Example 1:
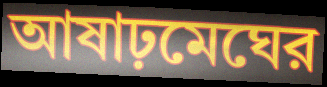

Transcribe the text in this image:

আষাঢ়মেঘের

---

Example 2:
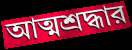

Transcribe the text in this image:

আত্মশ্রদ্ধার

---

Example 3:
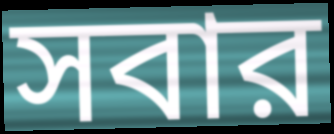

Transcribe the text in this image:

সবার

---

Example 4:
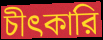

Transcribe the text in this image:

চীৎকারি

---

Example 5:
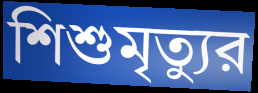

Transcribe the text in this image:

শিশুমৃত্যুর